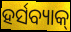
ହର୍ସବ୍ୟାକ୍